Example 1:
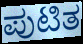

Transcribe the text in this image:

ಪುಟಿತ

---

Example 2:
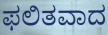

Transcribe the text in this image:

ಫಲಿತವಾದ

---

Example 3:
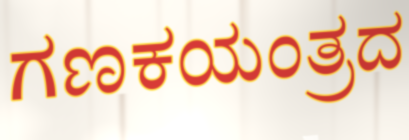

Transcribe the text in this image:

ಗಣಕಯಂತ್ರದ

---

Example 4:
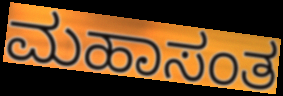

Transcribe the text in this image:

ಮಹಾಸಂತ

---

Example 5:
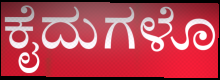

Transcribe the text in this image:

ಕೈದುಗಳೊ